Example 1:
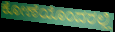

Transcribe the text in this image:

ಕೋಣೆಯೊಂದರಲ್ಲಿ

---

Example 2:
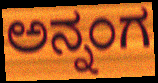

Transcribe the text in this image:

ಅನ್ನಂಗ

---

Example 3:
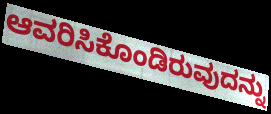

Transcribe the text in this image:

ಆವರಿಸಿಕೊಂಡಿರುವುದನ್ನು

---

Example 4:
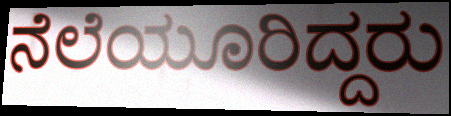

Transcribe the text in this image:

ನೆಲೆಯೂರಿದ್ದರು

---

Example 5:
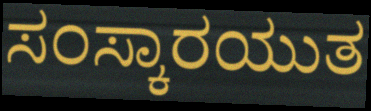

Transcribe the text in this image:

ಸಂಸ್ಕಾರಯುತ